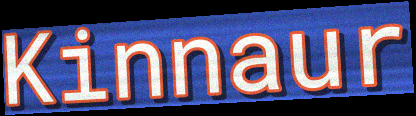
Kinnaur